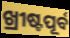
ଖ୍ରୀଷ୍ଟପୂର୍ବ